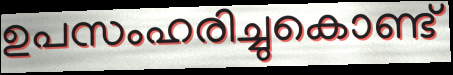
ഉപസംഹരിച്ചുകൊണ്ട്